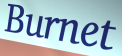
Burnet